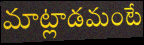
మాట్లాడమంటే